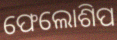
ଫେଲୋଶିପ